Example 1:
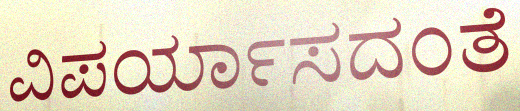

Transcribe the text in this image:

ವಿಪರ್ಯಾಸದಂತೆ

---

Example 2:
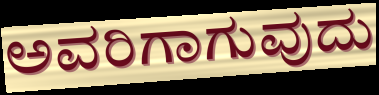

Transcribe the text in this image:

ಅವರಿಗಾಗುವುದು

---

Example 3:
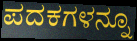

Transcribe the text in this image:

ಪದಕಗಳನ್ನೂ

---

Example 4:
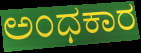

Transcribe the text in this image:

ಅಂಧಕಾರ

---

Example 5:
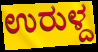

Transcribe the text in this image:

ಉರುಳ್ದ